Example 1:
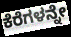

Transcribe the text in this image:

ಕೆರೆಗಳನ್ನೇ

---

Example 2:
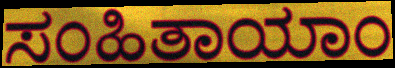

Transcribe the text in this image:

ಸಂಹಿತಾಯಾಂ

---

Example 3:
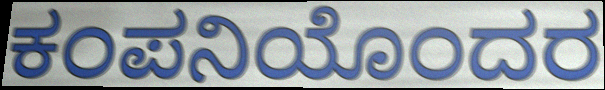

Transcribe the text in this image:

ಕಂಪನಿಯೊಂದರ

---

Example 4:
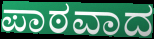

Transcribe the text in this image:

ಪಾಠವಾದ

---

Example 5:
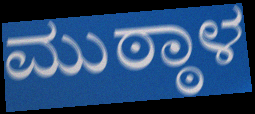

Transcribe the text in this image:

ಮುಠ್ಠಾಳ